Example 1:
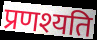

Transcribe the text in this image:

प्रणश्यति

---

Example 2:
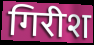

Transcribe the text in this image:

गिरीश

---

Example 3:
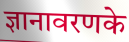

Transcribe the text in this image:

ज्ञानावरणके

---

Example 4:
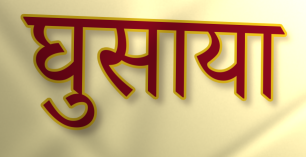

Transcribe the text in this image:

घुसाया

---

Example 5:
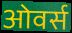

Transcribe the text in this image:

ओवर्स